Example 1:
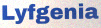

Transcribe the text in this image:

Lyfgenia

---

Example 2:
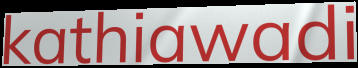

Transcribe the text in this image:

kathiawadi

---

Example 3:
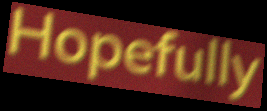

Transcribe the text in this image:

Hopefully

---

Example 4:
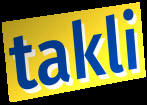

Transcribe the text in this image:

takli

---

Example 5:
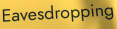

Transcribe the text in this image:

Eavesdropping